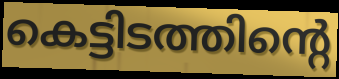
കെട്ടിടത്തിന്റെ